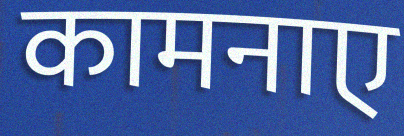
कामनाए